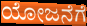
ಯೋಜನೆಗೆ